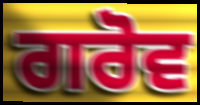
ਗਰੋਵ